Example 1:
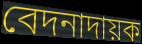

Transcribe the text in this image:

বেদনাদায়ক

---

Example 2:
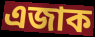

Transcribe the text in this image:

এজাক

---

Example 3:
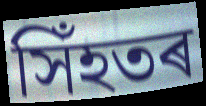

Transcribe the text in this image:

সিঁহতৰ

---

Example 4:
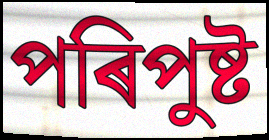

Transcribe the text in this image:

পৰিপুষ্ট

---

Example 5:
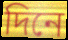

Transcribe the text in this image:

দিনে